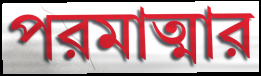
পরমাত্মার